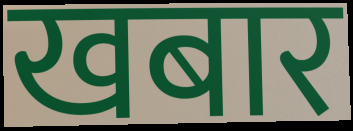
खबार